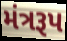
મંત્રરૂપ